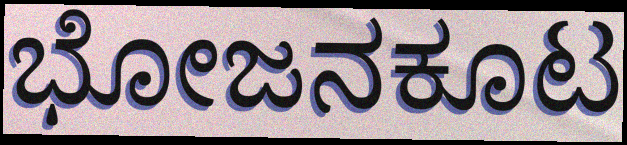
ಭೋಜನಕೂಟ